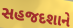
સહજદશાને